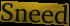
Sneed